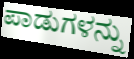
ಪಾಡುಗಳನ್ನು